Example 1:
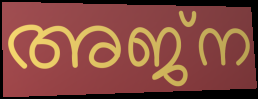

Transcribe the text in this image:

അജ്ന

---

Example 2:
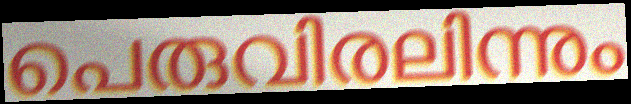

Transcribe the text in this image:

പെരുവിരലിന്നും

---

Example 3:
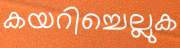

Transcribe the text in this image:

കയറിച്ചെല്ലുക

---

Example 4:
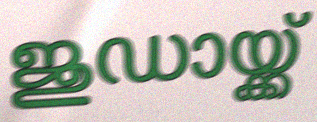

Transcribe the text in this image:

ജുഡായ്ക്ക്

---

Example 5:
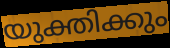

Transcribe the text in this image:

യുക്തിക്കും